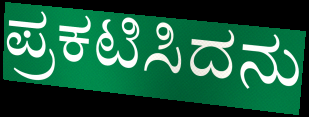
ಪ್ರಕಟಿಸಿದನು